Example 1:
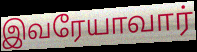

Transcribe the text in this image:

இவரேயாவார்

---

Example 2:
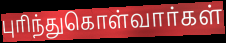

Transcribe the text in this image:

புரிந்துகொள்வார்கள்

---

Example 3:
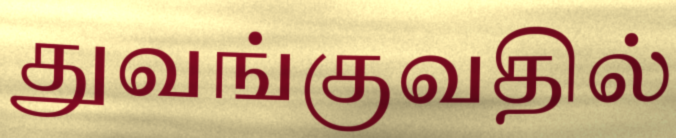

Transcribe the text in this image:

துவங்குவதில்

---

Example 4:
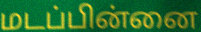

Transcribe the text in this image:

மடப்பின்னை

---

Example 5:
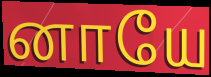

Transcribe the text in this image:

னாயே